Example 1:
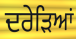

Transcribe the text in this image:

ਦਰੇੜਿਆਂ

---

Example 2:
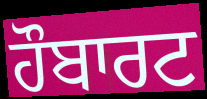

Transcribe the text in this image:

ਹੌਬਾਰਟ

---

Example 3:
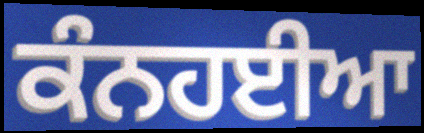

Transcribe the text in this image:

ਕੰਨਹਈਆ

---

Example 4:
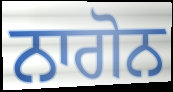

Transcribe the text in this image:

ਨਾਗੋਨ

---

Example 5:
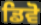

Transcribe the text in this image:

ਡਿਵੋ